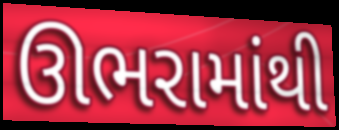
ઊભરામાંથી